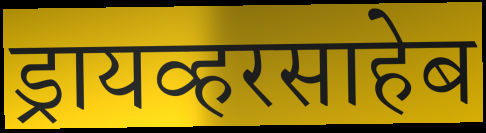
ड्रायव्हरसाहेब